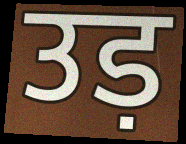
उड़